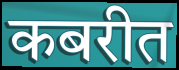
कबरीत